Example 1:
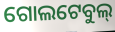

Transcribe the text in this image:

ଗୋଲଟେବୁଲ୍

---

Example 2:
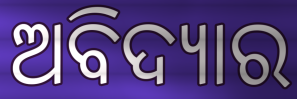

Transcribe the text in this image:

ଅବିଦ୍ୟାର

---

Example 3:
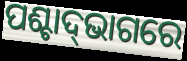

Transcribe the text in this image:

ପଶ୍ଚାଦ୍‍ଭାଗରେ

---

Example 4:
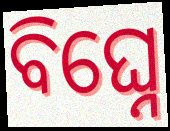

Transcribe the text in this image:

ବିଘ୍ନେ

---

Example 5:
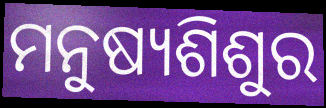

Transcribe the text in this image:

ମନୁଷ୍ୟଶିଶୁର